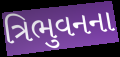
ત્રિભુવનના